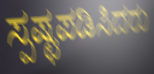
ಸ್ಪಷ್ಟಪಡಿಸಿದರು